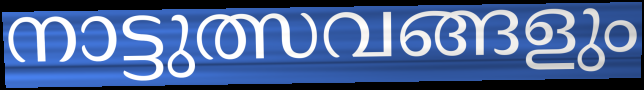
നാട്ടുത്സവങ്ങളും